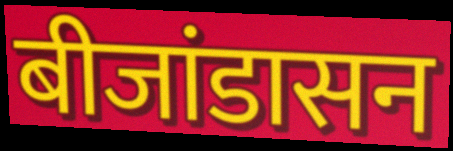
बीजांडासन